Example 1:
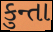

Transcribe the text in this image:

કુન્તા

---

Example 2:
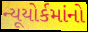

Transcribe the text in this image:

ન્યૂયોર્કમાંનો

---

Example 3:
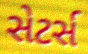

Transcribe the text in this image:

સેટર્સ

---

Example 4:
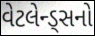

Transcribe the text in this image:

વેટલેન્ડ્સનો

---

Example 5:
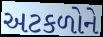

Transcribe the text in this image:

અટકળોને